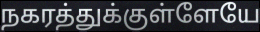
நகரத்துக்குள்ளேயே